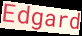
Edgard